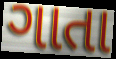
ગાતા